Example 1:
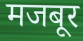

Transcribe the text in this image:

मजबूर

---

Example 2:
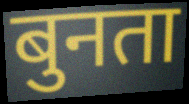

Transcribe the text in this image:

बुनता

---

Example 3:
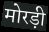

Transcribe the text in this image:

मोरड़ी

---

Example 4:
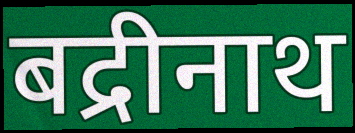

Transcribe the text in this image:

बद्रीनाथ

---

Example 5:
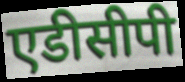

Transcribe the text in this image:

एडीसीपी